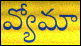
వ్యోమా